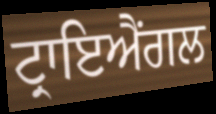
ਟ੍ਰਾਇਐਂਗਲ